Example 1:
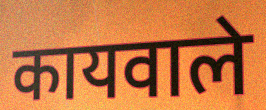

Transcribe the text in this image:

कायवाले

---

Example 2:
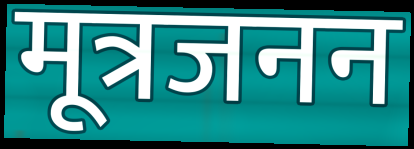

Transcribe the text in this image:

मूत्रजनन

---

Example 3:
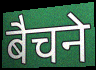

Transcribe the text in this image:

बैचने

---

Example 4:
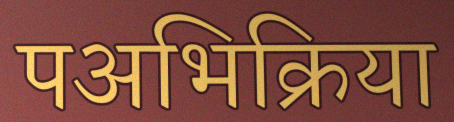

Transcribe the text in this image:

पअभिक्रिया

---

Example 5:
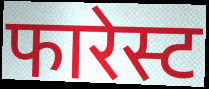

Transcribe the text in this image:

फारेस्ट